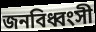
জনবিধ্বংসী